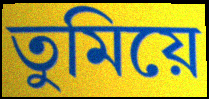
তুমিয়ে